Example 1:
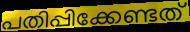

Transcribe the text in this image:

പതിപ്പിക്കേണ്ടത്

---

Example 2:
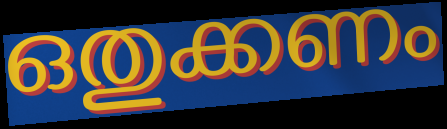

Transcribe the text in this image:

ഒതുക്കണം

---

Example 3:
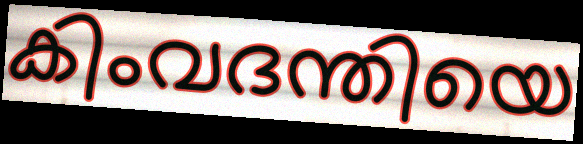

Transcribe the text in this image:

കിംവദന്തിയെ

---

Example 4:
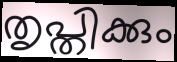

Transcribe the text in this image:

തൃപ്തിക്കും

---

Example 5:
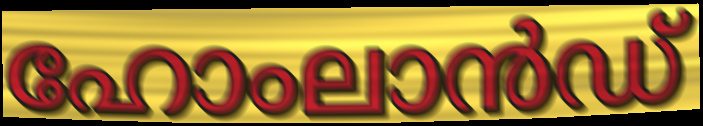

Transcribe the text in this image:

ഹോംലാൻഡ്